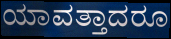
ಯಾವತ್ತಾದರೂ